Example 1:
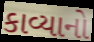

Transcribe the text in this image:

કાવ્યાનો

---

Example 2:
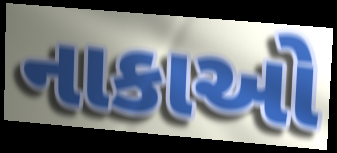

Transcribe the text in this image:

નાકાઓ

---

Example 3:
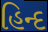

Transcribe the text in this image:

હિન્દ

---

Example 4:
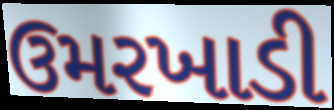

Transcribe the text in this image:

ઉમરખાડી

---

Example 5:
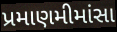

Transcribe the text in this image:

પ્રમાણમીમાંસા